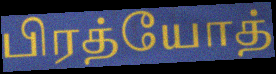
பிரத்யோத்